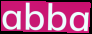
abba